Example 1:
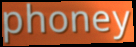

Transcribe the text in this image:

phoney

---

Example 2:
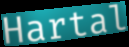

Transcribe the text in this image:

Hartal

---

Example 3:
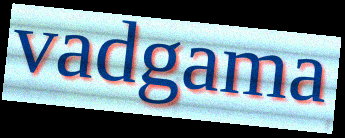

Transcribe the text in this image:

vadgama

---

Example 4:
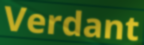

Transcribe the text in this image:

Verdant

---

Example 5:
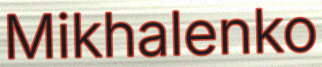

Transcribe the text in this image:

Mikhalenko